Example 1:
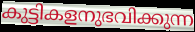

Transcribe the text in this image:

കുട്ടികളനുഭവിക്കുന്ന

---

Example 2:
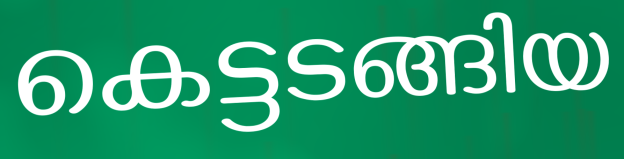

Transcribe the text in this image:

കെട്ടടങ്ങിയ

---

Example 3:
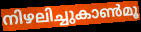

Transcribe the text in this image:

നിഴലിച്ചുകാൺമൂ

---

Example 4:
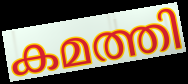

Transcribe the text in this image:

കമത്തി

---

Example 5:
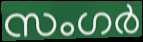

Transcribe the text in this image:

സംഗർ